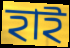
হাই